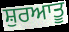
ਸ਼ੁਰਆਤੂ